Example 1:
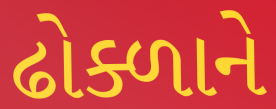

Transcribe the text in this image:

ઢોક્ળાને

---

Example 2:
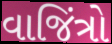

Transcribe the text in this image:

વાજિંત્રો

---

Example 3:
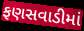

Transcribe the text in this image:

ફણસવાડીમાં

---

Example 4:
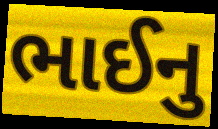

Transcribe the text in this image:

ભાઈનુ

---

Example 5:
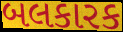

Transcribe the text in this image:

બલકારક